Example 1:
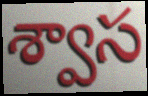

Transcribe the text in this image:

శ్వాస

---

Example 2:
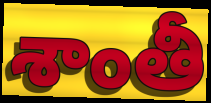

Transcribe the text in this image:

శాంతీ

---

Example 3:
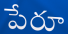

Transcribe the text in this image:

పేరూ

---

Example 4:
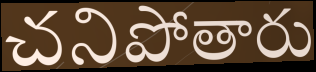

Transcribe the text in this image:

చనిపోతారు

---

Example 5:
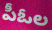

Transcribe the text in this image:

పీఓల